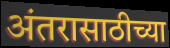
अंतरासाठीच्या